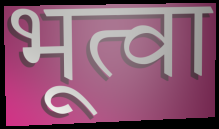
भूत्वा